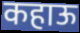
कहाऊ